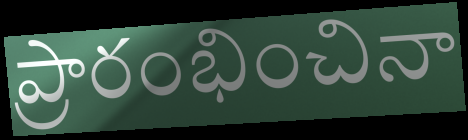
ప్రారంభించినా